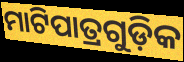
ମାଟିପାତ୍ରଗୁଡ଼ିକ